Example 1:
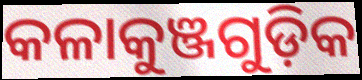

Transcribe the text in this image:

କଳାକୁଞ୍ଜଗୁଡ଼ିକ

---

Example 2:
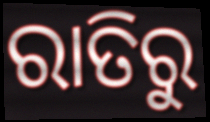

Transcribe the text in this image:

ରାତିରୁ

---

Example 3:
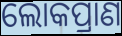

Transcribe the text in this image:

ଲୋକପ୍ରାଣ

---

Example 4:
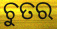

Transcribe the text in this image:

ଚୁତର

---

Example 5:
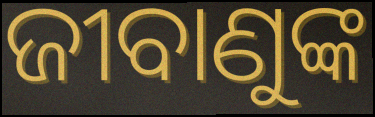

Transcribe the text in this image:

ଜୀବାଣୁଙ୍କ